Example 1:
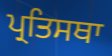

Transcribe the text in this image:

ਪ੍ਰਤਿਸਥਾ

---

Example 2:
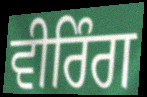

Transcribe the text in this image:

ਵੀਰਿੰਗ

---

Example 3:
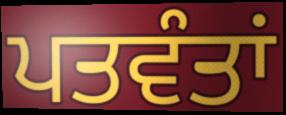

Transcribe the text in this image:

ਪਤਵੰਤਾਂ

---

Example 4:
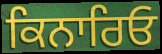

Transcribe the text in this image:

ਕਿਨਾਰਿਓ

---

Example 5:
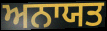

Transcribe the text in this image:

ਅਨਾਯਤ